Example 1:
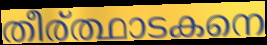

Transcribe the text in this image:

തീര്ത്ഥാടകനെ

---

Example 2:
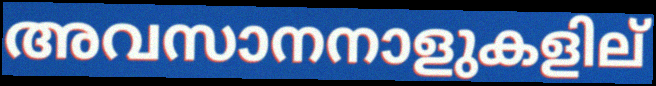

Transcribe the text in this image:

അവസാനനാളുകളില്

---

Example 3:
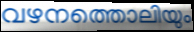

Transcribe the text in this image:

വഴനത്തൊലിയും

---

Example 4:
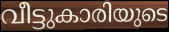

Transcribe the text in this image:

വീട്ടുകാരിയുടെ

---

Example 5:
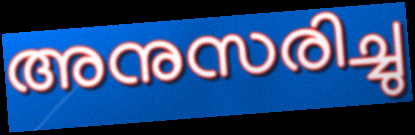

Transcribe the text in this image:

അനുസരിച്ചു